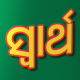
ସ୍ୱାର୍ଥ